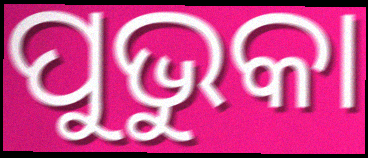
ପୁଭୁକା